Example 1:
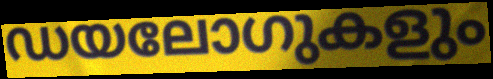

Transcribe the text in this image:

ഡയലോഗുകളും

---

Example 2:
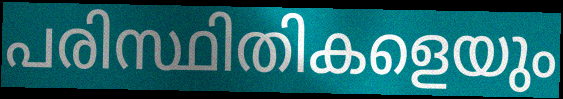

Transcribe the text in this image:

പരിസ്ഥിതികളെയും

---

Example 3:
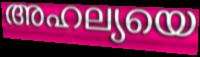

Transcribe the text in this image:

അഹല്യയെ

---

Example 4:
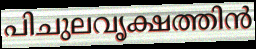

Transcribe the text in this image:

പിചുലവൃക്ഷത്തിൻ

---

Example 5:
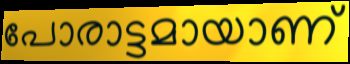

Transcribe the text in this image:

പോരാട്ടമായാണ്